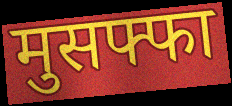
मुसफ्फा